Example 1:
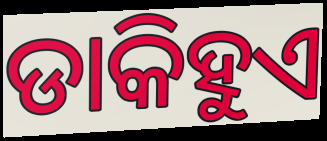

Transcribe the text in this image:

ଡାକିହୁଏ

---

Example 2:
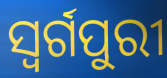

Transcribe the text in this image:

ସ୍ଵର୍ଗପୁରୀ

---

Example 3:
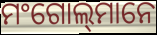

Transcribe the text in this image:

ମଂଗୋଲ୍‍ମାନେ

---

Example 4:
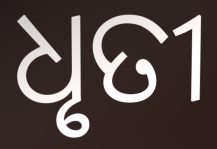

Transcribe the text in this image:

ଧୃତୀ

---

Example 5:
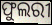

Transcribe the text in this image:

ଫୁଲରୀ